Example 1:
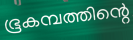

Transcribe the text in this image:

ഭൂകമ്പത്തിന്റെ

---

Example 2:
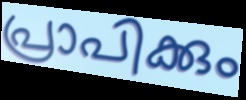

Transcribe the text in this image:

പ്രാപിക്കും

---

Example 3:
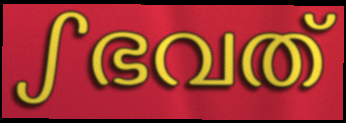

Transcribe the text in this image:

ഽഭവത്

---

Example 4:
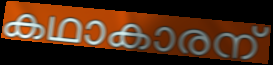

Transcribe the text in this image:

കഥാകാരന്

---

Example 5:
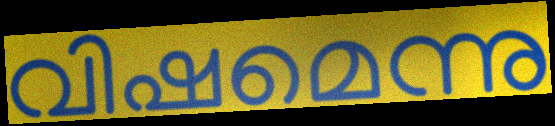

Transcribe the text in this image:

വിഷമെന്നു